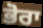
ਭੋਰਾ